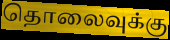
தொலைவுக்கு